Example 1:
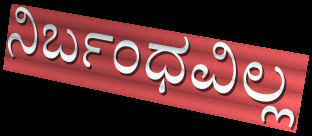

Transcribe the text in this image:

ನಿರ್ಬಂಧವಿಲ್ಲ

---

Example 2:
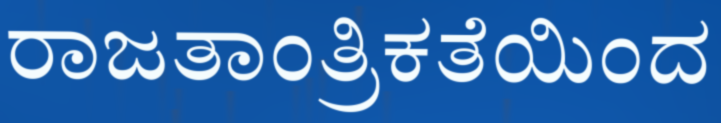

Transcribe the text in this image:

ರಾಜತಾಂತ್ರಿಕತೆಯಿಂದ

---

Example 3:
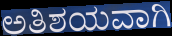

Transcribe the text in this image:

ಅತಿಶಯವಾಗಿ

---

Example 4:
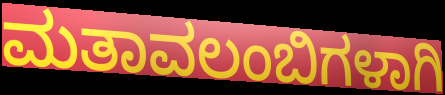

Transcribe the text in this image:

ಮತಾವಲಂಬಿಗಳಾಗಿ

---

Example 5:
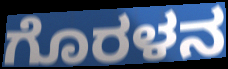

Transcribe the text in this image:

ಗೊರಳನ